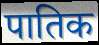
पातिक